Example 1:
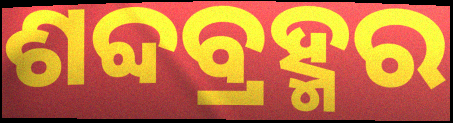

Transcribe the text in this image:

ଶବ୍ଦବ୍ରହ୍ମର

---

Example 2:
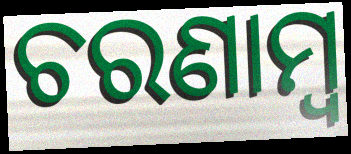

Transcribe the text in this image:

ଚରଣାମ୍ବ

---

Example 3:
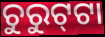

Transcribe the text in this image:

ଚୁରୁଟ୍‍ଟା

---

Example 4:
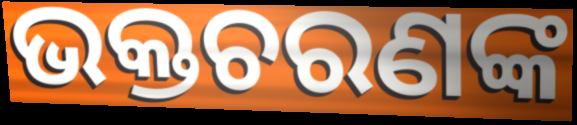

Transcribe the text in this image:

ଭକ୍ତଚରଣଙ୍କ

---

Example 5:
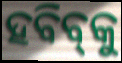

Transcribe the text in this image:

ହବିବ୍‌କୁ